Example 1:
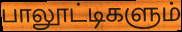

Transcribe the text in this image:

பாலூட்டிகளும்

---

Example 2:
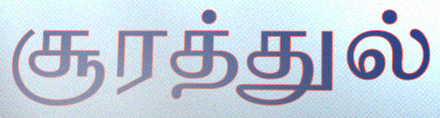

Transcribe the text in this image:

சூரத்துல்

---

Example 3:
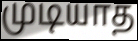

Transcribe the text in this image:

முடியாத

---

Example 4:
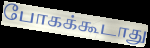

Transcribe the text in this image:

போகக்கூடாது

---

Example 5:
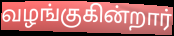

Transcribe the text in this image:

வழங்குகின்றார்